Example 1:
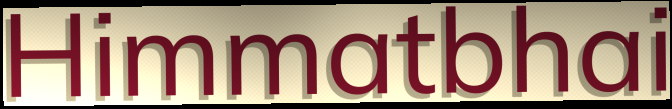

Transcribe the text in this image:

Himmatbhai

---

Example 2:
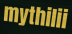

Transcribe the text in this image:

mythilii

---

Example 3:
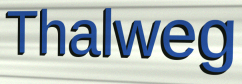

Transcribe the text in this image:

Thalweg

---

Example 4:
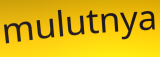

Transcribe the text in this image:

mulutnya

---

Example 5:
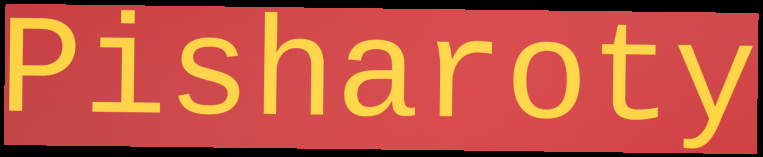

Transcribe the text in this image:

Pisharoty